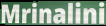
Mrinalini